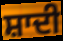
ਸ਼ਾਦੀ